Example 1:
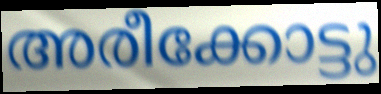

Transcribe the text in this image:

അരീക്കോട്ടു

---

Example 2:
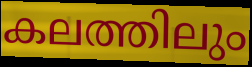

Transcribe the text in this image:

കലത്തിലും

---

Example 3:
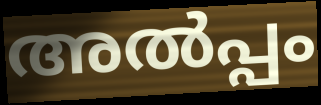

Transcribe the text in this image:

അൽപ്പം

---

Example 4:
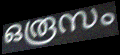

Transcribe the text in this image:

ഒരൂസം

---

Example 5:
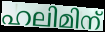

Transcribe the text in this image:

ഹലിമിന്